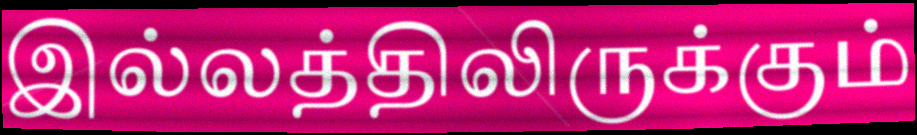
இல்லத்திலிருக்கும்